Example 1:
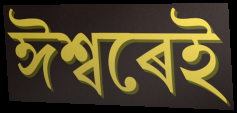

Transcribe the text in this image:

ঈশ্বৰেই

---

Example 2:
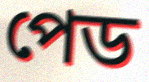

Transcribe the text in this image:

পেড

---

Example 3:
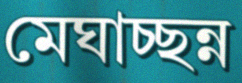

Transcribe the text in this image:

মেঘাচ্ছন্ন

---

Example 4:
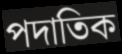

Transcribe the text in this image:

পদাতিক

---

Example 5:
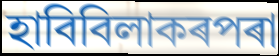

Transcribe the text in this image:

হাবিবিলাকৰপৰা